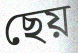
ছেয়